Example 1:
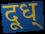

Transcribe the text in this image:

दूध्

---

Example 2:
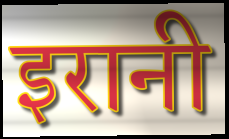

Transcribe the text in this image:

इरानी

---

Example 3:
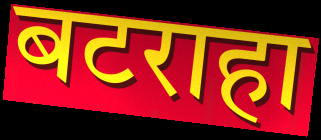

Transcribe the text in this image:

बटराहा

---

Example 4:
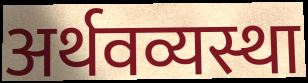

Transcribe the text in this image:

अर्थवव्यस्था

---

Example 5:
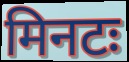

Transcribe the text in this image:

मिनटः